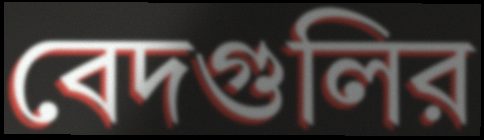
বেদগুলির